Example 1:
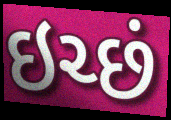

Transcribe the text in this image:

ઇચ્છં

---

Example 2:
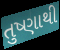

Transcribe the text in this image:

તુષ્ણાથી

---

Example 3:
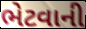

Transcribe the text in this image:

ભેટવાની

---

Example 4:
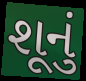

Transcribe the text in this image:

શૂનું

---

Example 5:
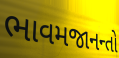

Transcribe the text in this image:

ભાવમજાનન્તો